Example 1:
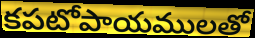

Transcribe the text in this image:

కపటోపాయములతో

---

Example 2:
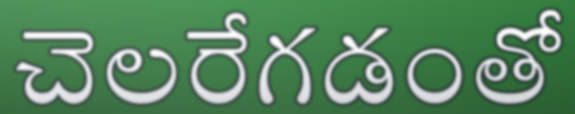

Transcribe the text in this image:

చెలరేగడంతో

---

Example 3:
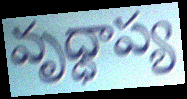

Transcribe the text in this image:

వృధ్ధాప్య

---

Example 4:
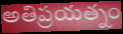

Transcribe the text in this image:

అతిప్రయత్నం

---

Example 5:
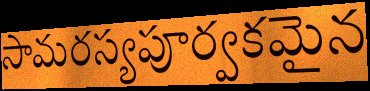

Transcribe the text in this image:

సామరస్యపూర్వకమైన